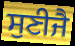
ਸੁਣੀਜੈ